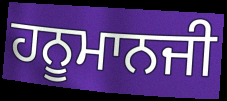
ਹਨੂਮਾਨਜੀ